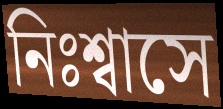
নিঃশ্বাসে